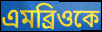
এমব্রিওকে